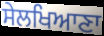
ਸੇਲਖਿਆਣਾ